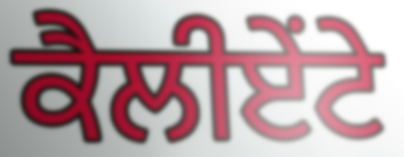
ਕੈਲੀਏਂਟੇ